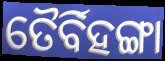
ତୈର୍ବିହଙ୍ଗା